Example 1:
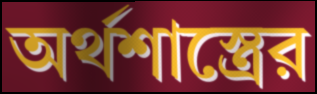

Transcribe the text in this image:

অর্থশাস্ত্রের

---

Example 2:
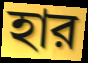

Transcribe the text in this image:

হার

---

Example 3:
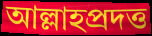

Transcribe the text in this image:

আল্লাহপ্রদত্ত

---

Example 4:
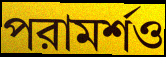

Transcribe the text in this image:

পরামর্শও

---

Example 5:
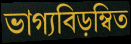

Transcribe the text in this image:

ভাগ্যবিড়ম্বিত